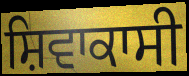
ਸ਼ਿਵਾਕਾਸੀ